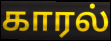
காரல்